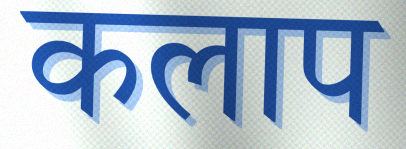
कलाप